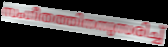
സംഗീതത്തിനനുസരിച്ച്